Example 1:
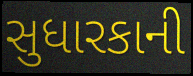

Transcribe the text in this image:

સુધારકાની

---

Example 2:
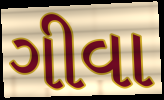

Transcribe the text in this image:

ગીવા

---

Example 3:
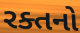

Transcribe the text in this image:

રક્તનો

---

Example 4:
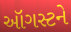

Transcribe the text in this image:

ઑગસ્ટને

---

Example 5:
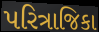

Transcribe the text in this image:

પરિત્રાજિકા